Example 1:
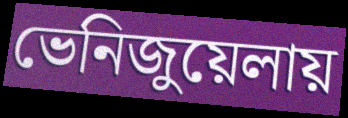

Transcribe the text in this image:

ভেনিজুয়েলায়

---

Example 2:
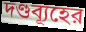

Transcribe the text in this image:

দণ্ডব্যূহের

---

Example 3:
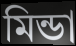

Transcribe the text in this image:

মিন্ডা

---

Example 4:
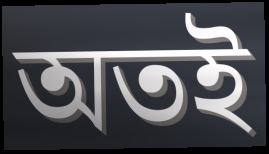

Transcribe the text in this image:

অতই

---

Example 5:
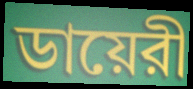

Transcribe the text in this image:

ডায়েরী